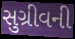
સુગ્રીવની